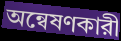
অন্বেষণকারী